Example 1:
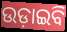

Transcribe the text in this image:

ଉଡ଼ାଇବି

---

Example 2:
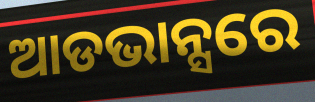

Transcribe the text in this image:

ଆଡଭାନ୍ସରେ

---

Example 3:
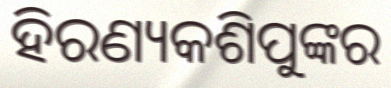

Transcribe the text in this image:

ହିରଣ୍ୟକଶିପୁଙ୍କର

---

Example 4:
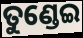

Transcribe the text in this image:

ତୁଣ୍ଡେଇ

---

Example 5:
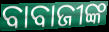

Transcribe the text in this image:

ବାବାଜୀଙ୍କ